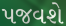
પજવશે